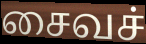
சைவச்